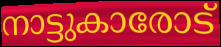
നാട്ടുകാരോട്